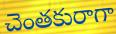
చెంతకురాగా